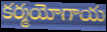
కర్మయోగాయ